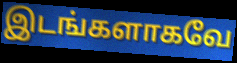
இடங்களாகவே